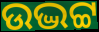
ଉଦ୍ଭଟ୍ଟ